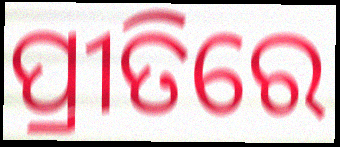
ପ୍ରୀତିରେ